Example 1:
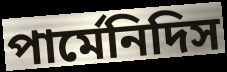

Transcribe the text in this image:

পার্মেনিদিস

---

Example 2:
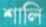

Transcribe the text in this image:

শালি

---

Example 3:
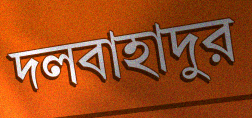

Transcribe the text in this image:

দলবাহাদুর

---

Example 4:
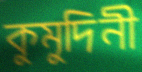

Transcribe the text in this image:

কুমুদিনী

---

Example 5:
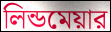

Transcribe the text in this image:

লিন্ডমেয়ার